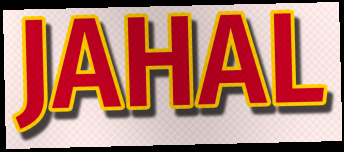
JAHAL